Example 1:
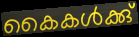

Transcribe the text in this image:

കൈകൾക്കു്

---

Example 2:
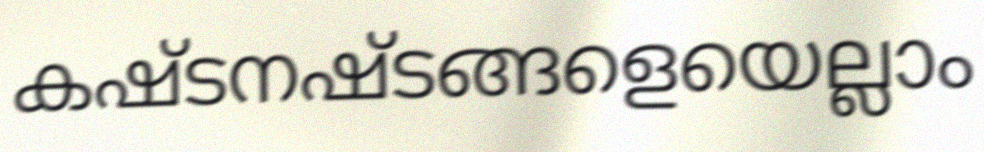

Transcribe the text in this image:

കഷ്ടനഷ്ടങ്ങളെയെല്ലാം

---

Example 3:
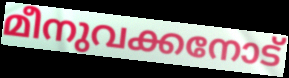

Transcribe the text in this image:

മീനുവക്കനോട്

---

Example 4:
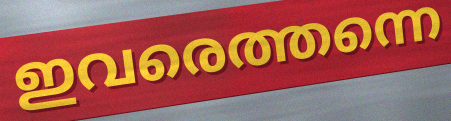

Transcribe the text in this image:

ഇവരെത്തന്നെ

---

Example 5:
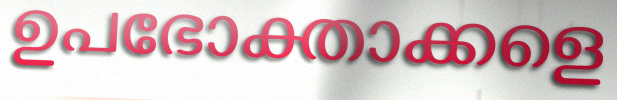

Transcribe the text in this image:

ഉപഭോക്താക്കളെ